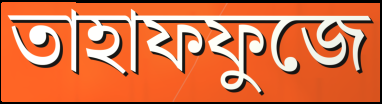
তাহাফফুজে